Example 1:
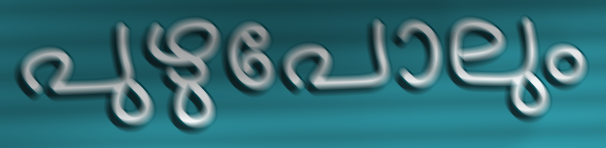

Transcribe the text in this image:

പുഴുപോലും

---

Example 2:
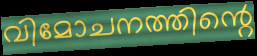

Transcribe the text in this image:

വിമോചനത്തിന്റെ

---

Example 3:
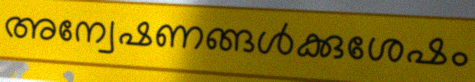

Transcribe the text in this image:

അന്വേഷണങ്ങൾക്കുശേഷം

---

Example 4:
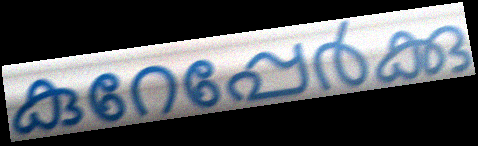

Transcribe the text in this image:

കുറേപ്പേർക്കു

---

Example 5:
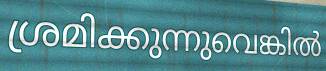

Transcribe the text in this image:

ശ്രമിക്കുന്നുവെങ്കിൽ